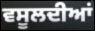
ਵਸੂਲਦੀਆਂ